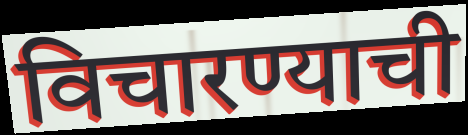
विचारण्याची